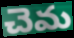
చెమ